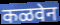
कळवेन